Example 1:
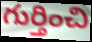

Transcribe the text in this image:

గుర్తించి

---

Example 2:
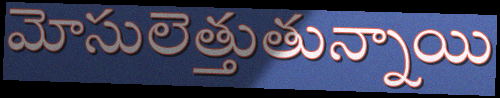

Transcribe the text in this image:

మోసులెత్తుతున్నాయి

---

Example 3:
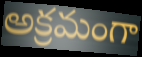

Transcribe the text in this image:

అక్రమంగా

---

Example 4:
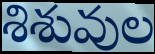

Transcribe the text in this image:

శిశువుల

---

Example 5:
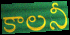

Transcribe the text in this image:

కాలనీ